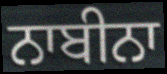
ਨਾਬੀਨਾ